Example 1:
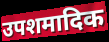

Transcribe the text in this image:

उपशमादिक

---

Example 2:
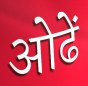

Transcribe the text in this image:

ओढें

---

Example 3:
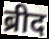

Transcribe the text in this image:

ब्रीद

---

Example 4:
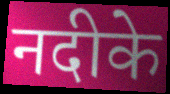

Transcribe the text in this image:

नदीके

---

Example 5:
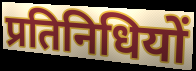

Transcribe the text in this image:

प्रतिनिधियों